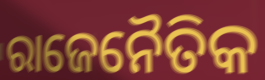
ରାଜେନୈତିକ